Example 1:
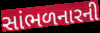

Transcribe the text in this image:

સાંભળનારની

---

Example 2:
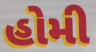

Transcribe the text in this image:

હોમી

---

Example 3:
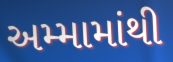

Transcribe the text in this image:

અમ્મામાંથી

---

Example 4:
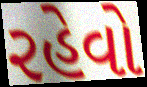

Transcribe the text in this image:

રહેવો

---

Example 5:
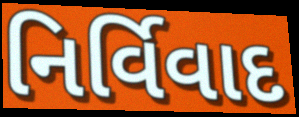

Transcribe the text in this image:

નિર્વિવાદ